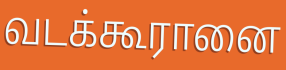
வடக்கூரானை